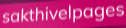
sakthivelpages